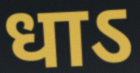
धाऽ